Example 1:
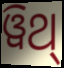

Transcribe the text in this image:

ୱିଥ୍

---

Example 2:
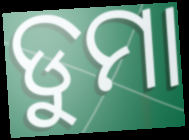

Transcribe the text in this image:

ଡୁମା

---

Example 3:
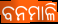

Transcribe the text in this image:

ବନମାଳି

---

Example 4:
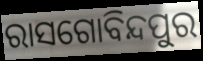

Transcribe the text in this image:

ରାସଗୋବିନ୍ଦପୁର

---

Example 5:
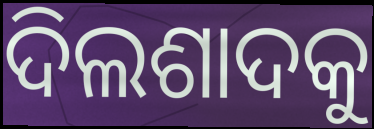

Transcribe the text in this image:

ଦିଲଶାଦକୁ